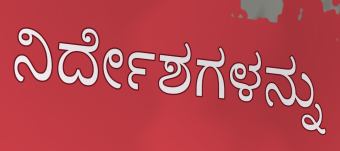
ನಿರ್ದೇಶಗಳನ್ನು